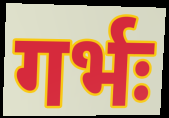
गर्भः